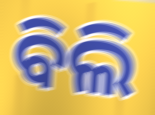
ବିଲି